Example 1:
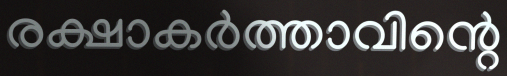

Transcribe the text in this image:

രക്ഷാകർത്താവിന്റെ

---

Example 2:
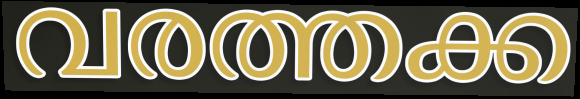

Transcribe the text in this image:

വരത്തക്ക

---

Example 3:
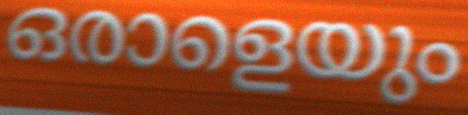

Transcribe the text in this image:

ഒരാളെയും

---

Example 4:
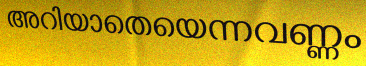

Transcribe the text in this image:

അറിയാതെയെന്നവണ്ണം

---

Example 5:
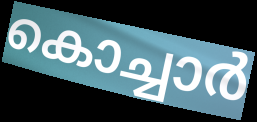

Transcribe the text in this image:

കൊച്ചാർ